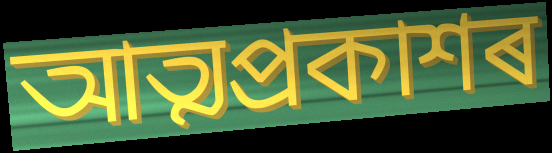
আত্মপ্ৰকাশৰ